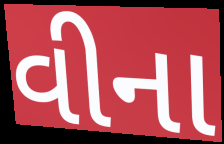
વીના